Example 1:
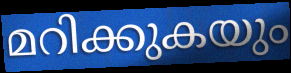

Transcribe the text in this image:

മറിക്കുകയും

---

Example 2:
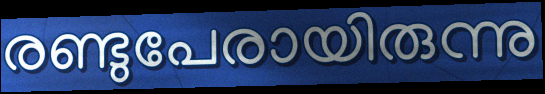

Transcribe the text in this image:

രണ്ടുപേരായിരുന്നു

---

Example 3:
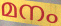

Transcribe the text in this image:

മനം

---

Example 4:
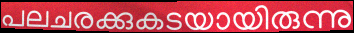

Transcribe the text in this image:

പലചരക്കുകടയായിരുന്നു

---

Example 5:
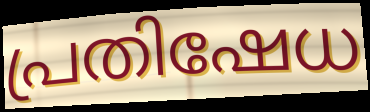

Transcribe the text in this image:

പ്രതിഷേധ